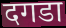
दगडा